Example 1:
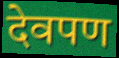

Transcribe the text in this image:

देवपण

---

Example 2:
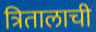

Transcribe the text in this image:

त्रितालाची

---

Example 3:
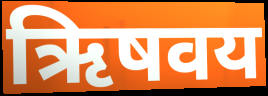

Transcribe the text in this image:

ऋिषवय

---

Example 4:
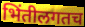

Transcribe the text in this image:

भिंतीलगतच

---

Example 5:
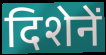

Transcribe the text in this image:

दिशेनें